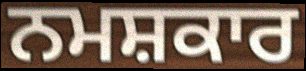
ਨਮਸ਼ਕਾਰ